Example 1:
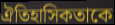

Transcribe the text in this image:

ঐতিহাসিকতাকে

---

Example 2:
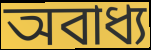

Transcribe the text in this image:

অবাধ্য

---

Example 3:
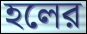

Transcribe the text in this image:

হলের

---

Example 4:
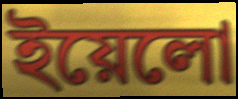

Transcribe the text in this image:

ইয়েলো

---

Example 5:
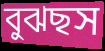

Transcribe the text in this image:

বুঝছস